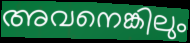
അവനെങ്കിലും